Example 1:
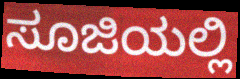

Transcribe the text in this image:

ಸೂಜಿಯಲ್ಲಿ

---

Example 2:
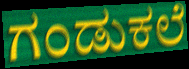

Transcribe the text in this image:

ಗಂಡುಕಲೆ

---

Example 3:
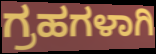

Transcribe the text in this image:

ಗ್ರಹಗಳಾಗಿ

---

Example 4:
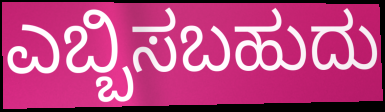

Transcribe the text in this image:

ಎಬ್ಬಿಸಬಹುದು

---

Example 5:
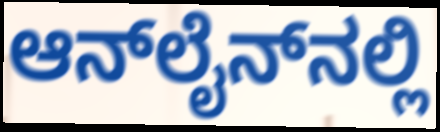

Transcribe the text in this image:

ಆನ್‌ಲೈನ್‌ನಲ್ಲಿ